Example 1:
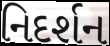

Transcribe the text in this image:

નિદર્શન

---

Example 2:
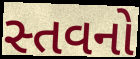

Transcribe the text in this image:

સ્તવનો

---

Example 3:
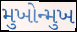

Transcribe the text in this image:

મુખોન્મુખ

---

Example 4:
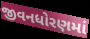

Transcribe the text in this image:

જીવનધોરણમાં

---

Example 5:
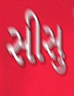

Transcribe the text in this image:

સીસુ